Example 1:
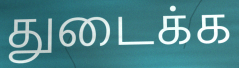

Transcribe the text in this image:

துடைக்க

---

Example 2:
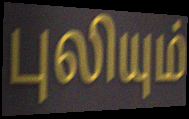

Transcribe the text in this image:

புலியும்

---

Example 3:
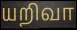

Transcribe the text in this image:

யறிவா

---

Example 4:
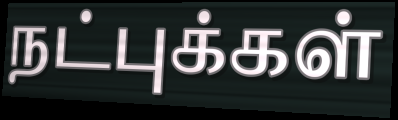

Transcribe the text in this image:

நட்புக்கள்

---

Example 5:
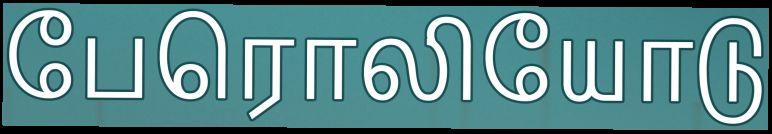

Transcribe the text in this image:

பேரொலியோடு